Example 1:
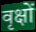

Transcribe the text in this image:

वृक्षों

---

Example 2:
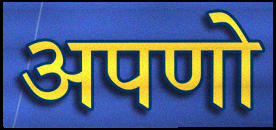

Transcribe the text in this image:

अपणो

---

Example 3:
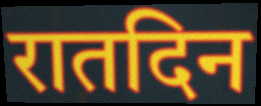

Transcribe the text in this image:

रातदिन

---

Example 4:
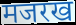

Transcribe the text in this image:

मजरख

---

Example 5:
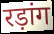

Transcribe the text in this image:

रड़ांग